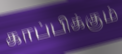
காப்பிக்கும்